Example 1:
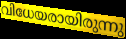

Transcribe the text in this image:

വിധേയരായിരുന്നു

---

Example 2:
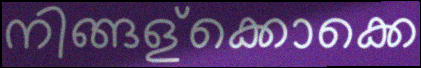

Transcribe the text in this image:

നിങ്ങള്ക്കൊക്കെ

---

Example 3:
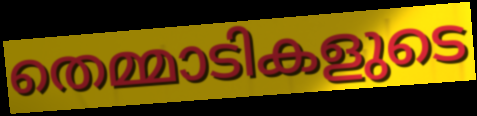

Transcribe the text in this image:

തെമ്മാടികളുടെ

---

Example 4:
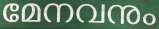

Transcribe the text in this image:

മേനവനും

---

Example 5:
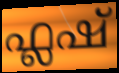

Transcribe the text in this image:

ഫ്ലഷ്